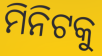
ମିନିଟକୁ